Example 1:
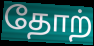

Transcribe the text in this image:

தோற்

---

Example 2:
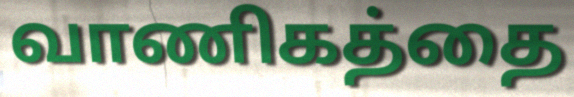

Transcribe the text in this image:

வாணிகத்தை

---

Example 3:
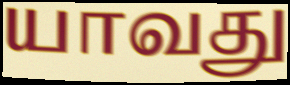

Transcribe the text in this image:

யாவது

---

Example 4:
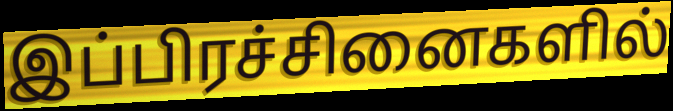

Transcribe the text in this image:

இப்பிரச்சினைகளில்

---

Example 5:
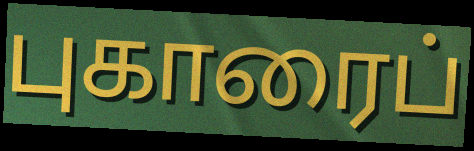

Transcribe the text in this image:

புகாரைப்